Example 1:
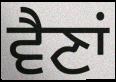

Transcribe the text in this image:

ਵੈਣਾਂ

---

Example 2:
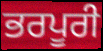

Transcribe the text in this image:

ਭਰਪੂਰੀ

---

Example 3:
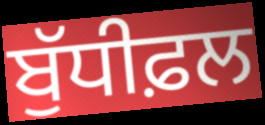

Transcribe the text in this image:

ਬੁੱਧੀਫ਼ਲ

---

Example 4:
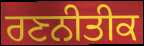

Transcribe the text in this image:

ਰਣਨੀਤੀਕ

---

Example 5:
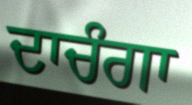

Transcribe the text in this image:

ਦਾਚੰਗਾ